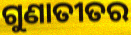
ଗୁଣାତୀତର